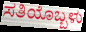
ಸತಿಯೊಬ್ಬಳು